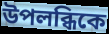
উপলব্ধিকে